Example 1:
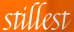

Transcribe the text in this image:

stillest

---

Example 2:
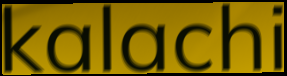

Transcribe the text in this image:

kalachi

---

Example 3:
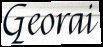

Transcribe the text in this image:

Georai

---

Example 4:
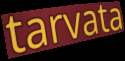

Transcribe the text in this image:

tarvata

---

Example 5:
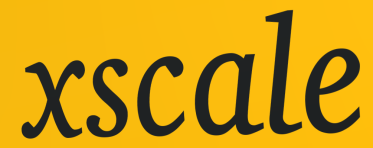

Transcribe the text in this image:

xscale